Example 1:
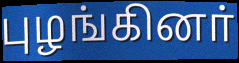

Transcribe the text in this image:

புழங்கினர்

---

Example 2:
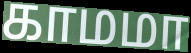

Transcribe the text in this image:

காமமா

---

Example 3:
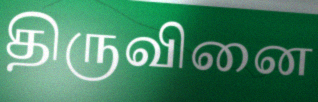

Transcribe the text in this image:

திருவினை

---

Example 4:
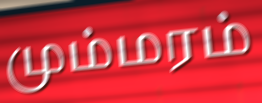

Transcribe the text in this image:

மும்மரம்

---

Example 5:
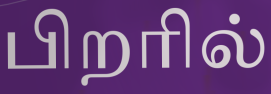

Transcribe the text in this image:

பிறரில்